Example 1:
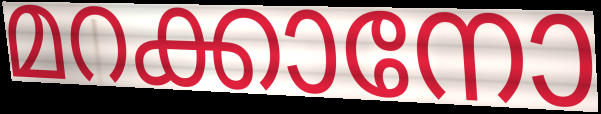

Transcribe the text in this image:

മറക്കാനോ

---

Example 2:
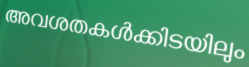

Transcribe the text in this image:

അവശതകൾക്കിടയിലും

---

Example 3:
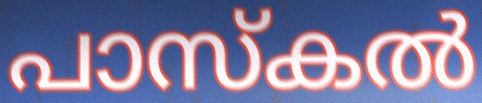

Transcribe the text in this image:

പാസ്കൽ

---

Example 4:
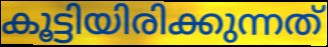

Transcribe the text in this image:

കൂട്ടിയിരിക്കുന്നത്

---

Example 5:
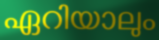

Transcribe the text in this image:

ഏറിയാലും